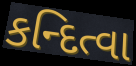
કન્દિત્વા